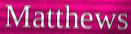
Matthews